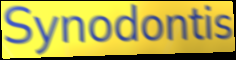
Synodontis